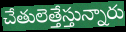
చేతులెత్తేస్తున్నారు